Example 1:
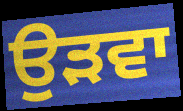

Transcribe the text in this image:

ਉੜਵਾ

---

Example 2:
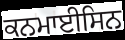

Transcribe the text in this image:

ਕਨਮਾਈਸਿਨ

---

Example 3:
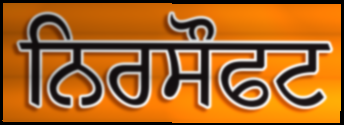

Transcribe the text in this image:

ਨਿਰਸੌਫਟ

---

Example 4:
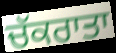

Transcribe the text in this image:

ਚੱਕਰਾਤਾ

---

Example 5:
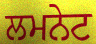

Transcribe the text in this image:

ਲਮਨੇਟ